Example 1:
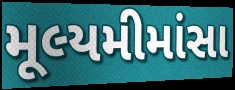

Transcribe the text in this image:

મૂલ્યમીમાંસા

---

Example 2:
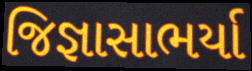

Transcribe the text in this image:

જિજ્ઞાસાભર્યા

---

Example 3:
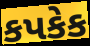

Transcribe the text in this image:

કપકેક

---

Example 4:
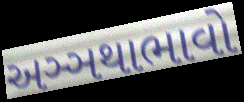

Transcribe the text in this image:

અઞ્ઞથાભાવો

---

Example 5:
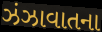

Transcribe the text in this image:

ઝંઝાવાતના